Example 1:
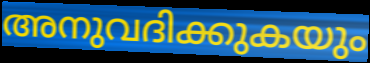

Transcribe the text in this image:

അനുവദിക്കുകയും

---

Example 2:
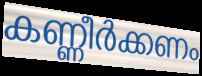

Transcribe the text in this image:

കണ്ണീർക്കണം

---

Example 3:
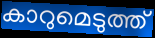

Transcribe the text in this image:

കാറുമെടുത്ത്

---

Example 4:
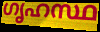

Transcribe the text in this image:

ഗൃഹസ്ഥ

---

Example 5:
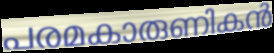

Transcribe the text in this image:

പരമകാരുണികൻ